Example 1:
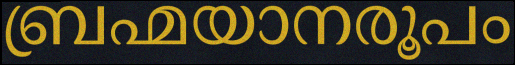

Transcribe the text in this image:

ബ്രഹ്മയാനരൂപം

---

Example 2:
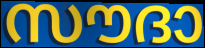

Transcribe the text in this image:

സൗദാ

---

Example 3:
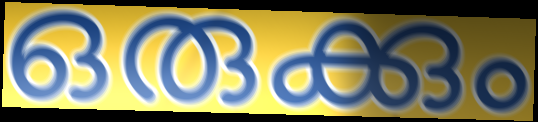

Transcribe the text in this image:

ഒരുക്കും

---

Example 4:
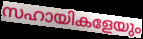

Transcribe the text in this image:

സഹായികളേയും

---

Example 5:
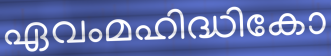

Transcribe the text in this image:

ഏവംമഹിദ്ധികോ